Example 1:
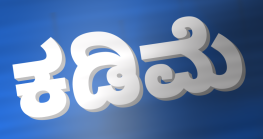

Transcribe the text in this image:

ಕಡಿಮೆ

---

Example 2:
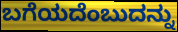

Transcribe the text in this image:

ಬಗೆಯದೆಂಬುದನ್ನು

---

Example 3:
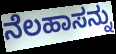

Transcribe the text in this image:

ನೆಲಹಾಸನ್ನು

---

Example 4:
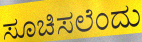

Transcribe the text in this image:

ಸೂಚಿಸಲೆಂದು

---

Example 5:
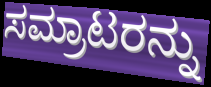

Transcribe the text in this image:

ಸಮ್ರಾಟರನ್ನು